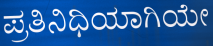
ಪ್ರತಿನಿಧಿಯಾಗಿಯೇ